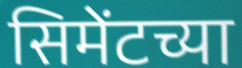
सिमेंटच्या